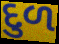
દુળ